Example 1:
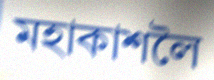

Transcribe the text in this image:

মহাকাশলৈ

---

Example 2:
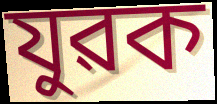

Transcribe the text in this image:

যুৱক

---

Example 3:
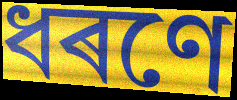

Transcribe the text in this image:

ধৰণে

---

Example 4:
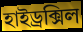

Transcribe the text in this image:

হাইড্ৰক্সিল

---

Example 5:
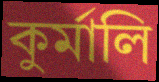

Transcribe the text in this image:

কুৰ্মালি